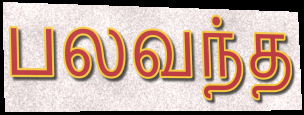
பலவந்த